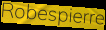
Robespierre